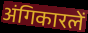
अंगिकारलें